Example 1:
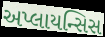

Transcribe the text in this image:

અપ્લાયન્સિસ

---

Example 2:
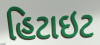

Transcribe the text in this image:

હિટાઇટ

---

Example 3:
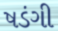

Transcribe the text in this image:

ષડંગી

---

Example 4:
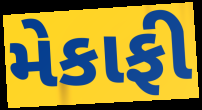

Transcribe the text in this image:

મેકાફી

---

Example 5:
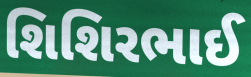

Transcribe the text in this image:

શિશિરભાઈ